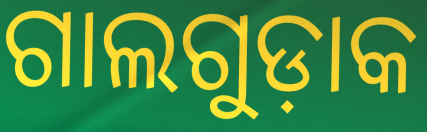
ଗାଲଗୁଡ଼ାକ